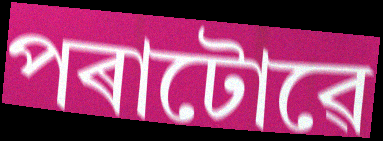
পৰাটোৱে